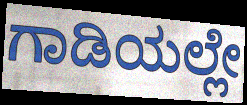
ಗಾಡಿಯಲ್ಲೇ